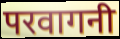
परवागनी